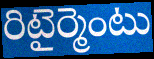
రిటైర్మెంటు